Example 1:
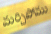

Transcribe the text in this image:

మర్చిపోము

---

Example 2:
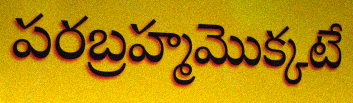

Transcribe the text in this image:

పరబ్రహ్మమొక్కటే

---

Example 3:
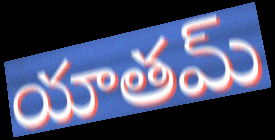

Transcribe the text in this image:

యాతమ్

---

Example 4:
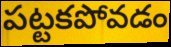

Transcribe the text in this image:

పట్టకపోవడం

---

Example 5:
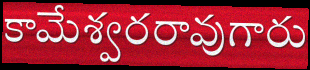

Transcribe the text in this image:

కామేశ్వరరావుగారు